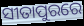
ସୀତାପୁରରେ